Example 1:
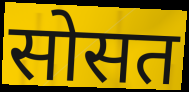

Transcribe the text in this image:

सोसत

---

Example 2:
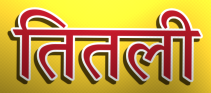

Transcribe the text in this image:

तितली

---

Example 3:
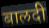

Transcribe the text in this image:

बालदी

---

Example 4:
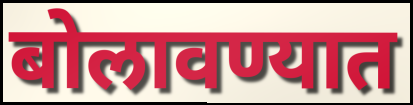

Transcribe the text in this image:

बोलावण्यात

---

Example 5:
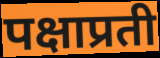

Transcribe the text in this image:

पक्षाप्रती